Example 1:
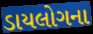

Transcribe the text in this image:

ડાયલોગના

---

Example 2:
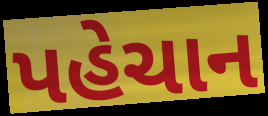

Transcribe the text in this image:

પહેચાન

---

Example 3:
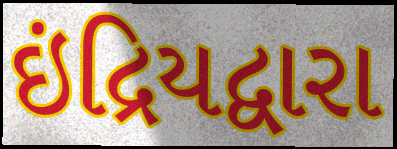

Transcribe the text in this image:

ઇંદ્રિયદ્વારા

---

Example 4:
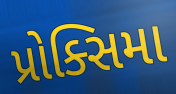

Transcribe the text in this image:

પ્રોક્સિમા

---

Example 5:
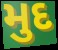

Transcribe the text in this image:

મુદ